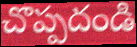
చొప్పదండి